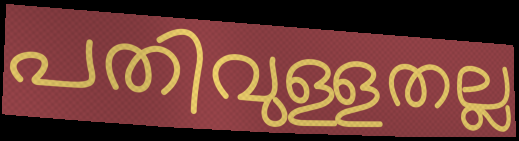
പതിവുള്ളതല്ല